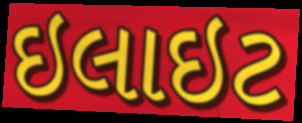
ઇલાઇટ